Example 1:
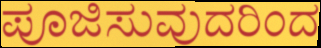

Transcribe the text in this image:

ಪೂಜಿಸುವುದರಿಂದ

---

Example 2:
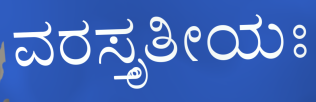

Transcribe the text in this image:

ವರಸ್ತೃತೀಯಃ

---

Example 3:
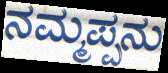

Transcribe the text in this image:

ನಮ್ಮಪ್ಪನು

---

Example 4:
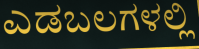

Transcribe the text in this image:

ಎಡಬಲಗಳಲ್ಲಿ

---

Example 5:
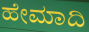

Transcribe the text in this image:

ಹೇಮಾದಿ